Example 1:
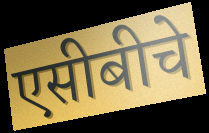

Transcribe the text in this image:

एसीबीचे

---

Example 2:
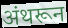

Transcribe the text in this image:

अंथरून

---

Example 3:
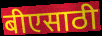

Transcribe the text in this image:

बीएसाठी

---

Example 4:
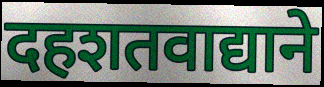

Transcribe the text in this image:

दहशतवाद्याने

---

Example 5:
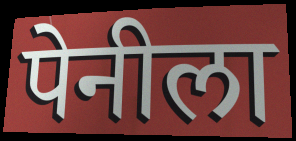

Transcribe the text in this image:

पेनीला